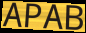
APAB